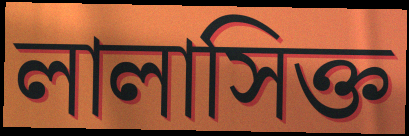
লালাসিক্ত